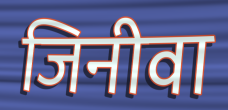
जिनीवा